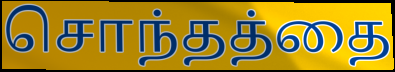
சொந்தத்தை